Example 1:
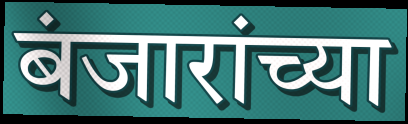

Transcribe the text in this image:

बंजारांच्या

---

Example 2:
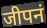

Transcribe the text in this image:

जीपनं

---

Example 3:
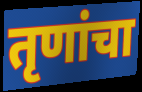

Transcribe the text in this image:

तृणांचा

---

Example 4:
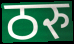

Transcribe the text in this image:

ठरु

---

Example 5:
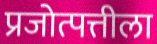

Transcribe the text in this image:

प्रजोत्पत्तीला